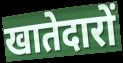
खातेदारों